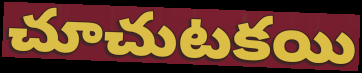
చూచుటకయి